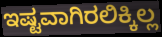
ಇಷ್ಟವಾಗಿರಲಿಕ್ಕಿಲ್ಲ